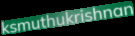
ksmuthukrishnan